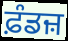
ਫ਼ੰਡਜ਼